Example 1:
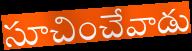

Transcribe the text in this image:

సూచించేవాడు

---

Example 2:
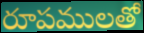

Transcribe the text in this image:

రూపములతో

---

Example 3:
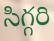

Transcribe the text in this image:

సిగ్గరి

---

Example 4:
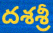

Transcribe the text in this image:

దశశ్రీ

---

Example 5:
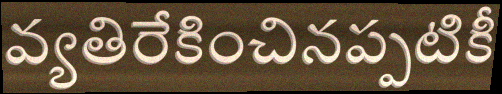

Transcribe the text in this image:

వ్యతిరేకించినప్పటికీ